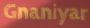
Gnaniyar